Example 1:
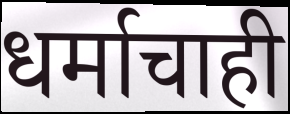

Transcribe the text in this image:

धर्माचाही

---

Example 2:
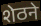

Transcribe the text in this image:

शेठने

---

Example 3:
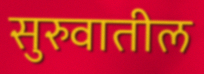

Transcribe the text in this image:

सुरुवातील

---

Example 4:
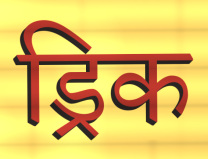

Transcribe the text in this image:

ड्रिक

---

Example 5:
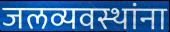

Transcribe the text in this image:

जलव्यवस्थांना